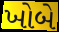
ખોબે